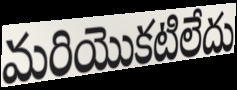
మరియొకటిలేదు